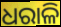
ଧରାଳି